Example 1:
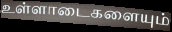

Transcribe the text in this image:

உள்ளாடைகளையும்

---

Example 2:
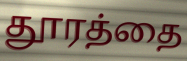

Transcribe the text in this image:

தூரத்தை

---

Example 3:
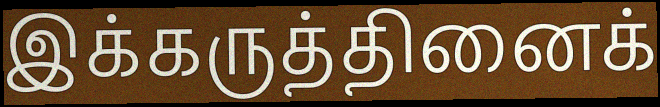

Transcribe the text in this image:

இக்கருத்தினைக்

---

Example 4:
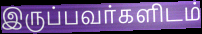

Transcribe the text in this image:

இருப்பவர்களிடம்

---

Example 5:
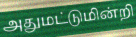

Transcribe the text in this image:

அதுமட்டுமின்றி